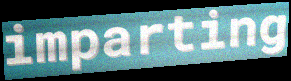
imparting